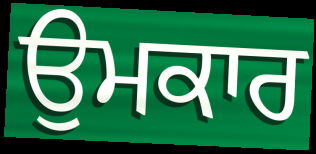
ਉਮਕਾਰ